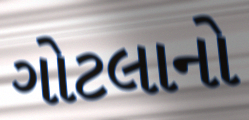
ગોટલાનો